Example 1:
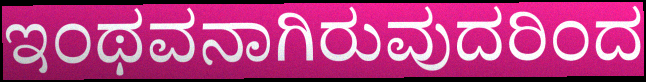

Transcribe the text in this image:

ಇಂಥವನಾಗಿರುವುದರಿಂದ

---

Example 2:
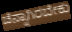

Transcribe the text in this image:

ಚೆನ್ನಾಗಿರಬೇಕು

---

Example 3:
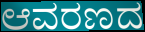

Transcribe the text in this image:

ಆವರಣದ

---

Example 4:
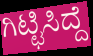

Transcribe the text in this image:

ಗಿಟ್ಟಿಸಿದ್ದೆ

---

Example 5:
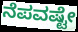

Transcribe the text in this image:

ನೆಪವಷ್ಟೇ